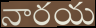
నారయ